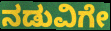
ನಡುವಿಗೇ